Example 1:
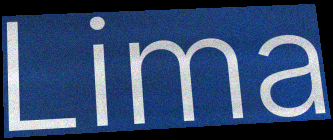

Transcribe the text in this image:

Lima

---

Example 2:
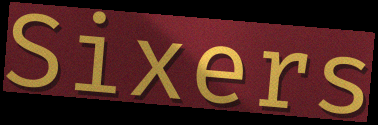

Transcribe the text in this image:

Sixers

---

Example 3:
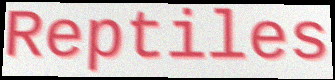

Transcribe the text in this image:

Reptiles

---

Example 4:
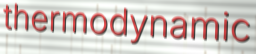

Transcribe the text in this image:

thermodynamic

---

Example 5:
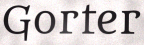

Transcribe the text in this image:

Gorter